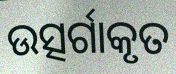
ଉତ୍ସର୍ଗାକୃତ